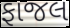
ફાજલ